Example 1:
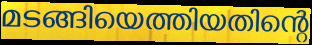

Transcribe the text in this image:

മടങ്ങിയെത്തിയതിന്റെ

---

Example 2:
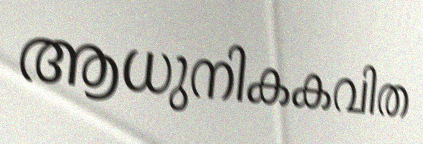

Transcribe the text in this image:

ആധുനികകവിത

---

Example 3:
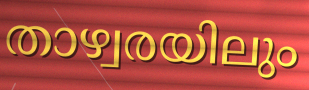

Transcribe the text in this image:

താഴ്വരയിലും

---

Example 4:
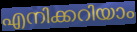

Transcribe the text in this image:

എനിക്കറിയാം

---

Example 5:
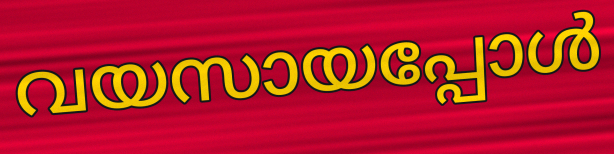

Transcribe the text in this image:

വയസായപ്പോൾ